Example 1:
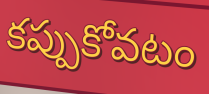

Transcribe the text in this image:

కప్పుకోవటం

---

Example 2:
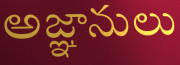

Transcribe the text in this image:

అజ్ఞానులు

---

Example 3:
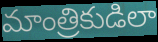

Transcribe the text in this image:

మాంత్రికుడిలా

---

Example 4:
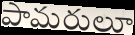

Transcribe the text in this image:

పామరులూ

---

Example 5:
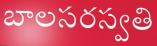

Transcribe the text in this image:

బాలసరస్వతి